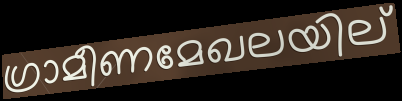
ഗ്രാമീണമേഖലയില്